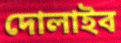
দোলাইব